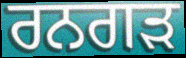
ਰਨਗੜ